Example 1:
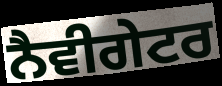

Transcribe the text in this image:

ਨੈਵੀਗੇਟਰ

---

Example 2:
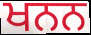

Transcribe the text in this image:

ਖਨਨ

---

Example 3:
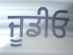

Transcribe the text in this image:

ਜੂਡੀਓ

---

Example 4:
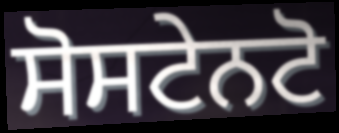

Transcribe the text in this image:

ਸੋਸਟੇਨਟੋ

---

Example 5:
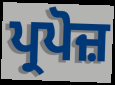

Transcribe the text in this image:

ਪ੍ਰਪੋਜ਼